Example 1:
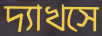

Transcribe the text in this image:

দ্যাখসে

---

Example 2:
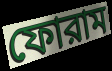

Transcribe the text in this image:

ফোরাম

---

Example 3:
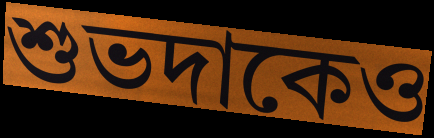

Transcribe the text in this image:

শুভদাকেও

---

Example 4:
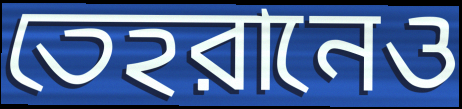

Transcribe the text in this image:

তেহরানেও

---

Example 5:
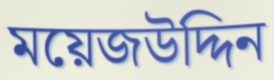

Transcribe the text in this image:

ময়েজউদ্দিন